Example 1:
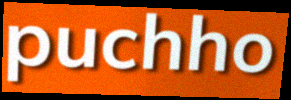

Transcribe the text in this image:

puchho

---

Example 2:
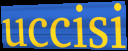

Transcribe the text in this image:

uccisi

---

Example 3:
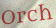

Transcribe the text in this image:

Orch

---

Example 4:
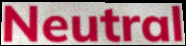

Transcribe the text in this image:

Neutral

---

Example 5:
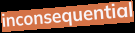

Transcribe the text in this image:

inconsequential